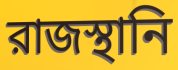
রাজস্থানি